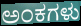
ಅಂಕಗಳು